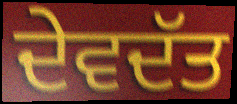
ਦੇਵਦੱਤ